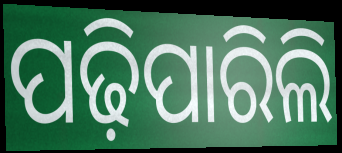
ପଢ଼ିପାରିଲି